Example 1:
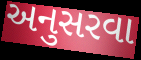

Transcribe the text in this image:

અનુસરવા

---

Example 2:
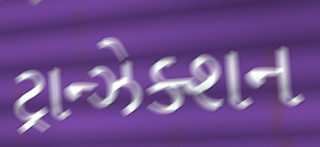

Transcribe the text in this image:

ટ્રાન્ઝેક્શન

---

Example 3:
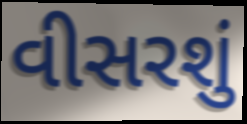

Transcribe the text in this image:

વીસરશું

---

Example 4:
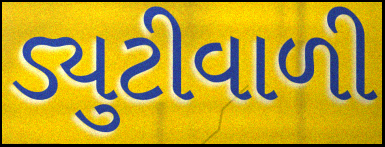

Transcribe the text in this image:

ડ્યુટીવાળી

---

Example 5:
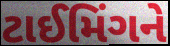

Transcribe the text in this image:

ટાઈમિંગને